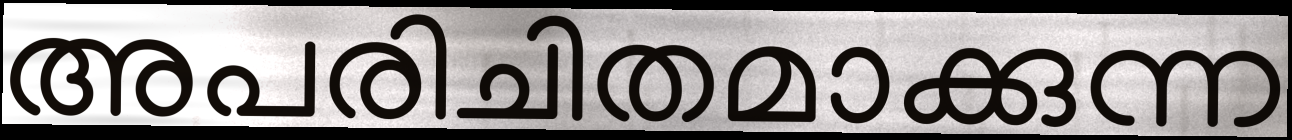
അപരിചിതമാക്കുന്ന